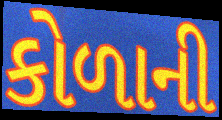
કોળાની